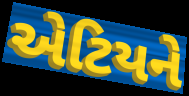
એટિયને